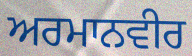
ਅਰਮਾਨਵੀਰ